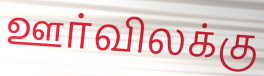
ஊர்விலக்கு